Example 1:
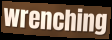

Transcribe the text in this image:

wrenching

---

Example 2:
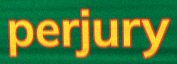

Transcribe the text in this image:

perjury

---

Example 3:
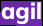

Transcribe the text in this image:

agil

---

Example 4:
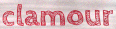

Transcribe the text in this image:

clamour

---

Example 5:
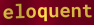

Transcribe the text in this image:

eloquent